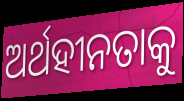
ଅର୍ଥହୀନତାକୁ